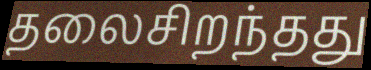
தலைசிறந்தது